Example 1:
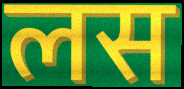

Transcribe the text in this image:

लस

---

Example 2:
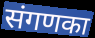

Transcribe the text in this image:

संगणका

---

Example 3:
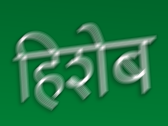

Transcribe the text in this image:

हिशेब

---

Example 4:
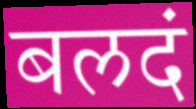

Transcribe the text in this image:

बलदं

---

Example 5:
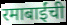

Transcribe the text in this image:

रमाबाईंची